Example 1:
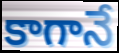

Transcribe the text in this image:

కాగానే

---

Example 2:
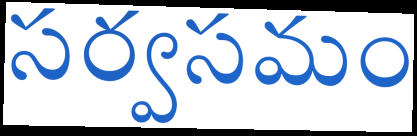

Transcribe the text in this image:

సర్వసమం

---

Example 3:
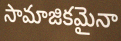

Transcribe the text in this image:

సామాజికమైనా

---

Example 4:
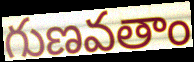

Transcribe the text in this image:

గుణవతాం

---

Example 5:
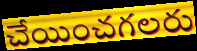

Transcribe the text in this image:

చేయించగలరు